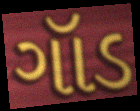
ગૉડ